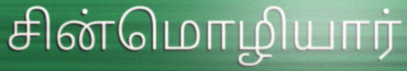
சின்மொழியார்